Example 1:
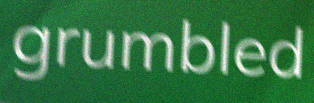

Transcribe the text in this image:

grumbled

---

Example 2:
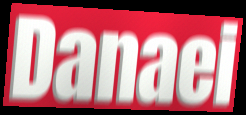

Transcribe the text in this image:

Danaei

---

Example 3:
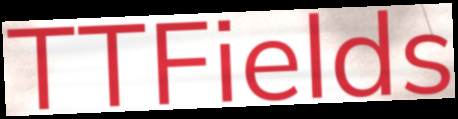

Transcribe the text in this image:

TTFields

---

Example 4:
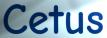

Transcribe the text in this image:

Cetus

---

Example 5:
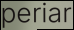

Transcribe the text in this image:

periar